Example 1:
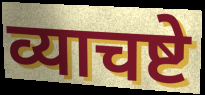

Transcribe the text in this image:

व्याचष्टे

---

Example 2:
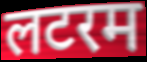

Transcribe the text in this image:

लटरम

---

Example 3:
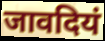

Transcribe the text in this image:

जावदियं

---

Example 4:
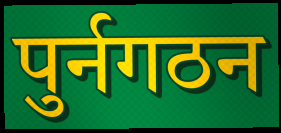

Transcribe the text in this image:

पुर्नगठन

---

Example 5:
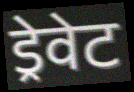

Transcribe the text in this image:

ड्रेवेट